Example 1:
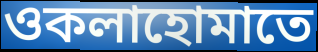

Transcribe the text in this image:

ওকলাহোমাতে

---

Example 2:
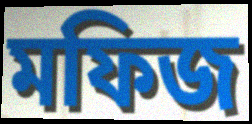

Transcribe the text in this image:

মফিজ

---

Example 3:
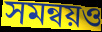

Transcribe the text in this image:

সমন্বয়ও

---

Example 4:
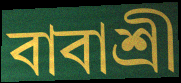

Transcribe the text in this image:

বাবাশ্রী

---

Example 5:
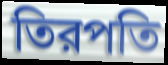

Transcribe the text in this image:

তিরপতি